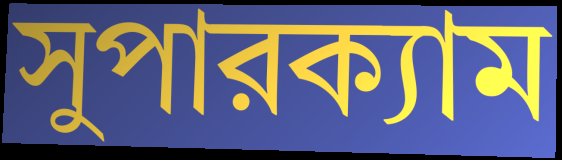
সুপারক্যাম